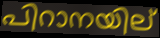
പിറാനയില്